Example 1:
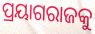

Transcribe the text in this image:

ପ୍ରୟାଗରାଜକୁ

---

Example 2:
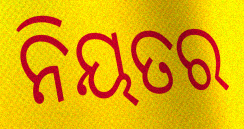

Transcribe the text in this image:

ନିୟତର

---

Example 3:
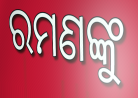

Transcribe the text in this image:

ରମଣଙ୍କୁ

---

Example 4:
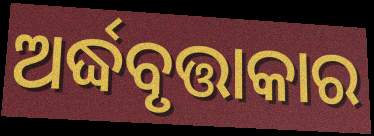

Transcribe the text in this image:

ଅର୍ଦ୍ଧବୃତ୍ତାକାର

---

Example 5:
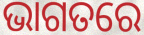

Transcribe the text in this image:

ଭାଗତରେ